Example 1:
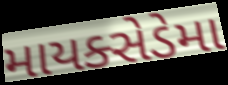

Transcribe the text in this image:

માયક્સેડેમા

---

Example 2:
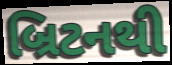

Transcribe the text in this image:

બ્રિટનથી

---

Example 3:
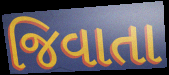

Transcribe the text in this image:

જિવાતા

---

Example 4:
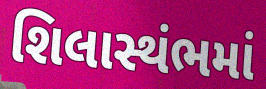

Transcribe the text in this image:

શિલાસ્થંભમાં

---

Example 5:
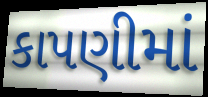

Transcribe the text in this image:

કાપણીમાં